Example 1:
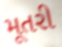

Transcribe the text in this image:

મૂતરી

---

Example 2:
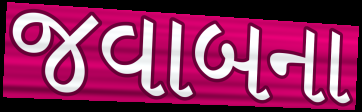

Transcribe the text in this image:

જવાબના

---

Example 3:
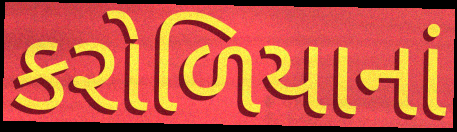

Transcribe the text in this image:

કરોળિયાનાં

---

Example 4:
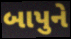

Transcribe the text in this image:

બાપુને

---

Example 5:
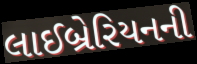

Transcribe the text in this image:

લાઈબ્રેરિયનની